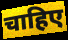
चाहिए